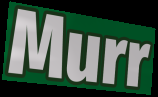
Murr